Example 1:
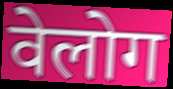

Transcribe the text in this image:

वेलोग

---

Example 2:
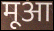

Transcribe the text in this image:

मूआ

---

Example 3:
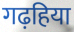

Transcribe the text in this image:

गढ़हिया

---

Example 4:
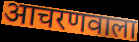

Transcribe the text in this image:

आचरणवाला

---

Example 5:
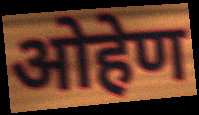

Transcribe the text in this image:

ओहेण